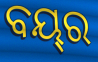
ବୟ୍‌ର